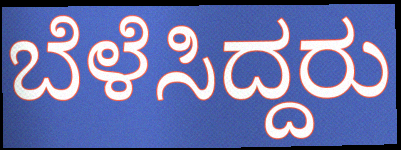
ಬೆಳೆಸಿದ್ದರು